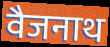
वैजनाथ